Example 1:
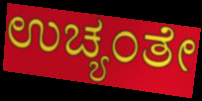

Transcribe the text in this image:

ಉಚ್ಯಂತೇ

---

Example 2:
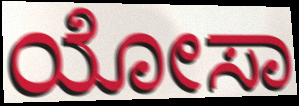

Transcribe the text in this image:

ಯೋಸಾ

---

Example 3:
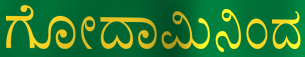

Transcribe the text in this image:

ಗೋದಾಮಿನಿಂದ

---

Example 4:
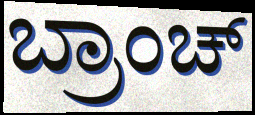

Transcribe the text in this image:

ಬ್ರಾಂಚ್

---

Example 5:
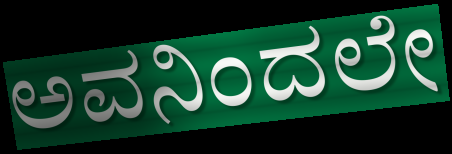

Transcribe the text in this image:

ಅವನಿಂದಲೇ